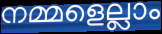
നമ്മളെല്ലാം